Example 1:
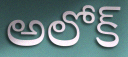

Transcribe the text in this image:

అలోక్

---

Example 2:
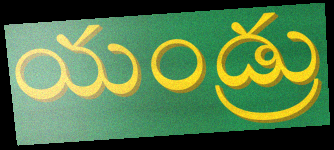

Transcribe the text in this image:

యండ్రు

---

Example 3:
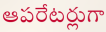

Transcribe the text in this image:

ఆపరేటర్లుగా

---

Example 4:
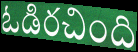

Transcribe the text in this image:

ఓడిరచింది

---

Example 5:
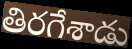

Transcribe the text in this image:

తిరగేశాడు